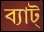
ব্যাট্